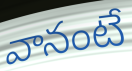
వానంటే